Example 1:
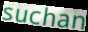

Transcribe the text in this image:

suchan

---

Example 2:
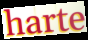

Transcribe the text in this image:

harte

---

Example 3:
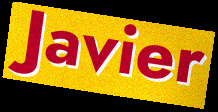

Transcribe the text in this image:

Javier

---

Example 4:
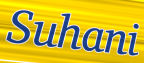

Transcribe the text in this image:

Suhani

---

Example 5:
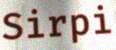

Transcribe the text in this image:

Sirpi